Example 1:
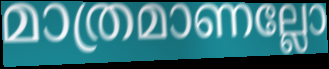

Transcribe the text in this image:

മാത്രമാണല്ലോ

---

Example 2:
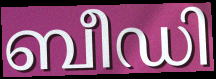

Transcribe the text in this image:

ബീഡി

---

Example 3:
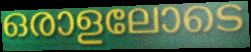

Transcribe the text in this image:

ഒരാളലോടെ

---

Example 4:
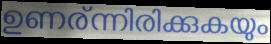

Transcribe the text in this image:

ഉണര്ന്നിരിക്കുകയും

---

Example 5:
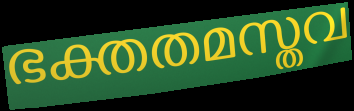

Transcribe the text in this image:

ഭക്തതമസ്തവ